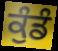
ਕੁੰਡੰ